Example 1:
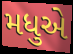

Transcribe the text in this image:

મધુએ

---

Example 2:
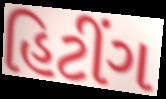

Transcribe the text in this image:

હિટીંગ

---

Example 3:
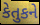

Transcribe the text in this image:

કેતુકને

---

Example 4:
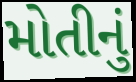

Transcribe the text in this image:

મોતીનું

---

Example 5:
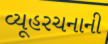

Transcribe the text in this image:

વ્યૂહરચનાની